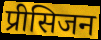
प्रीसिजन